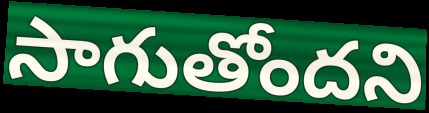
సాగుతోందని